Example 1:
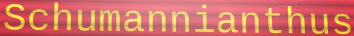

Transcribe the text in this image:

Schumannianthus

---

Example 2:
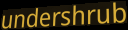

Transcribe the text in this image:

undershrub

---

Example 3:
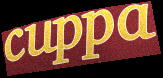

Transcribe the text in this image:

cuppa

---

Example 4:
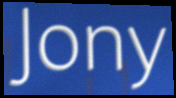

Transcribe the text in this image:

Jony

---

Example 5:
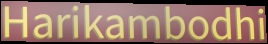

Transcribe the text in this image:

Harikambodhi